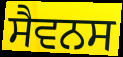
ਸੈਵਨਸ